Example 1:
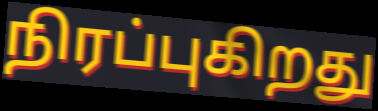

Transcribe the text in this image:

நிரப்புகிறது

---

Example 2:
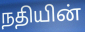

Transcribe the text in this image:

நதியின்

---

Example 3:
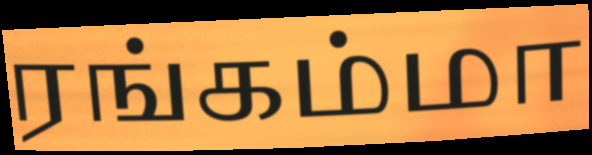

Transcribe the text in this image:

ரங்கம்மா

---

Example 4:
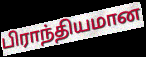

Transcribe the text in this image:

பிராந்தியமான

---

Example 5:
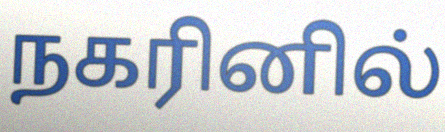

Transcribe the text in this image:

நகரினில்